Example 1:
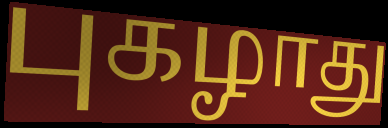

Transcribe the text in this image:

புகழாது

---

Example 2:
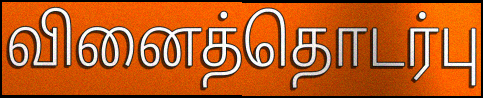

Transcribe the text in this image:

வினைத்தொடர்பு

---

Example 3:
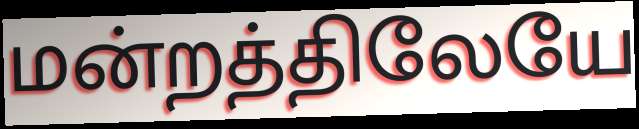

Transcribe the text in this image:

மன்றத்திலேயே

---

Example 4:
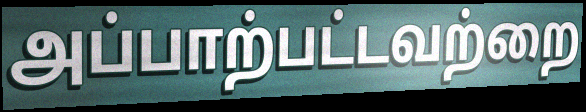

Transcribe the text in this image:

அப்பாற்பட்டவற்றை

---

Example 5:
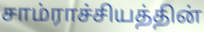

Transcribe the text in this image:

சாம்ராச்சியத்தின்